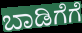
ಬಾಡಿಗೆಗೆ